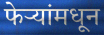
फेऱ्यांमधून